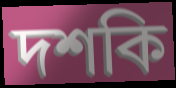
দশকি